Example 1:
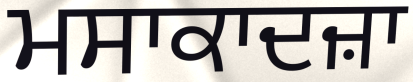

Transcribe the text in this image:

ਮਸਾਕਾਦਜ਼ਾ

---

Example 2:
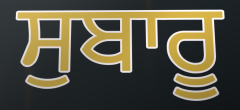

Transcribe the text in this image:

ਸੁਬਾਰੂ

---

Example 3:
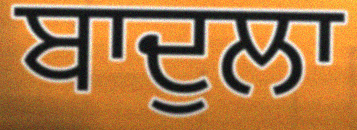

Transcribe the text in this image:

ਬਾਦੁਲਾ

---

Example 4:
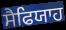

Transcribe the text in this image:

ਸੈਫਿਯਾਹ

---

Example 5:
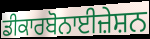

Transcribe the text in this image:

ਡੀਕਾਰਬੋਨਾਈਜ਼ੇਸ਼ਨ